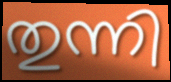
തുന്നി